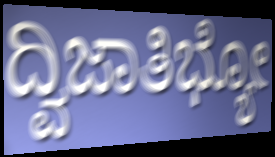
ದ್ವಿಜಾತಿಭ್ಯೋ